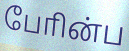
பேரின்ப